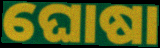
ଘୋଷା